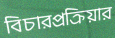
বিচারপ্রক্রিয়ার